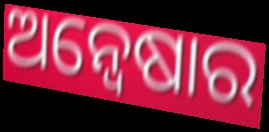
ଅନ୍ବେଷାର